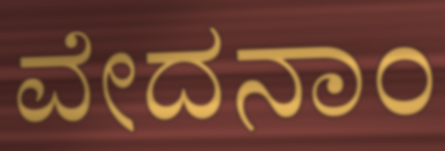
ವೇದನಾಂ